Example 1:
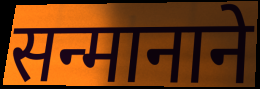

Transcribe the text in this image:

सन्मानाने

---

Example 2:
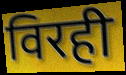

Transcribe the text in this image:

विरही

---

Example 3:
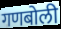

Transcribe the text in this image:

गणबोली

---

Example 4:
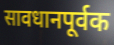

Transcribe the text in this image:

सावधानपूर्वक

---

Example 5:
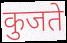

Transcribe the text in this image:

कुजते